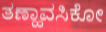
ತಣ್ಹಾವಸಿಕೋ